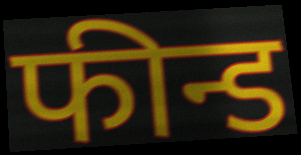
फीन्ड